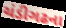
ચંડીગઢના